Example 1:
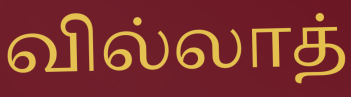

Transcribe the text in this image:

வில்லாத்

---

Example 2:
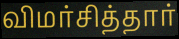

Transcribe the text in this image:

விமர்சித்தார்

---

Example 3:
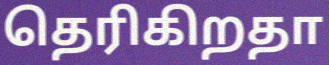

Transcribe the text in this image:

தெரிகிறதா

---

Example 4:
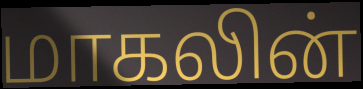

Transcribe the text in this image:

மாகலின்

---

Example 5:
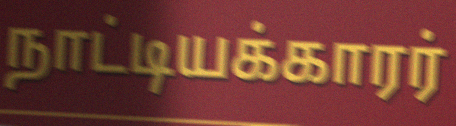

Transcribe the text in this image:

நாட்டியக்காரர்